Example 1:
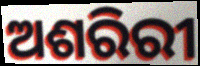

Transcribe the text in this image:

ଅଶରିରୀ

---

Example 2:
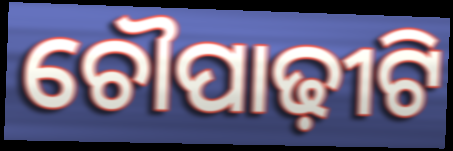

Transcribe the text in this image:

ଚୌପାଢ଼ୀଟି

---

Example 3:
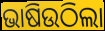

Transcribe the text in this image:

ଭାଷିଉଠିଲା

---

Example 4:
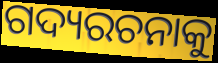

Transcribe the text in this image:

ଗଦ୍ୟରଚନାକୁ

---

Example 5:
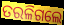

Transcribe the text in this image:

ତରଳିଗଲେ